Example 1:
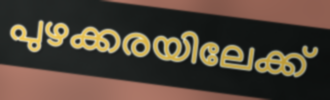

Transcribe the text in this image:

പുഴക്കരയിലേക്ക്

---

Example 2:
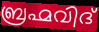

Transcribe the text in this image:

ബ്രഹ്മവിദ്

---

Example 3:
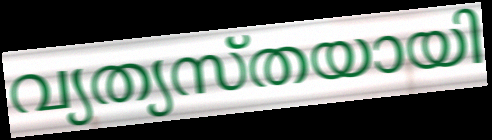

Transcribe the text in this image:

വ്യത്യസ്തയായി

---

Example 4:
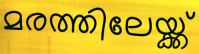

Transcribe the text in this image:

മരത്തിലേയ്ക്ക്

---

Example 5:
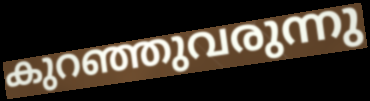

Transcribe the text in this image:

കുറഞ്ഞുവരുന്നു